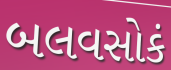
બલવસોકં